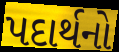
પદાર્થનો